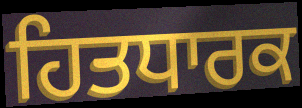
ਹਿਤਧਾਰਕ